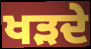
ਖੜਦੇ